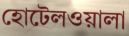
হোটেলওয়ালা